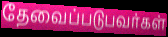
தேவைப்படுபவர்கள்